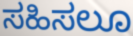
ಸಹಿಸಲೂ